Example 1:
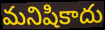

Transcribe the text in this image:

మనిషికాదు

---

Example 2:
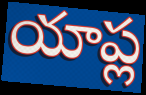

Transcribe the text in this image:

యాప్ల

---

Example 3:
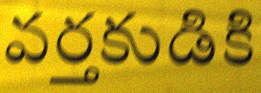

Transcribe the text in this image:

వర్తకుడికి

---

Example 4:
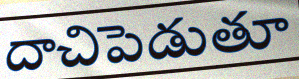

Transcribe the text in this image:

దాచిపెడుతూ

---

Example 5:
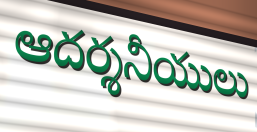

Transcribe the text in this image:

ఆదర్శనీయులు